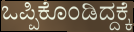
ಒಪ್ಪಿಕೊಂಡಿದ್ದಕ್ಕೆ